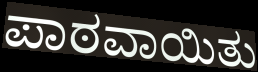
ಪಾಠವಾಯಿತು